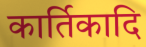
कार्तिकादि